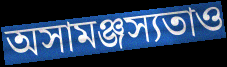
অসামঞ্জস্যতাও